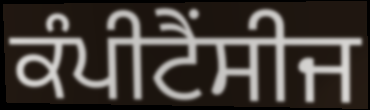
ਕੰਪੀਟੈਂਸੀਜ